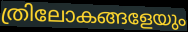
ത്രിലോകങ്ങളേയും